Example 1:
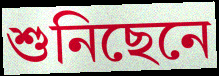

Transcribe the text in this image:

শুনিছেনে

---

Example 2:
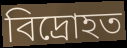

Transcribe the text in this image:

বিদ্ৰোহত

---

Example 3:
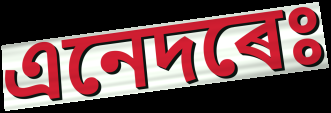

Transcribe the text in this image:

এনেদৰেঃ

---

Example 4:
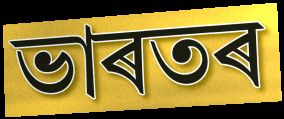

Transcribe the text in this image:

ভাৰতৰ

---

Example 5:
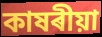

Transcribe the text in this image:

কাষৰীয়া